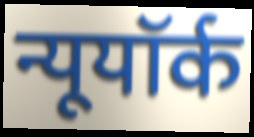
न्यूयॉर्क